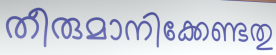
തീരുമാനിക്കേണ്ടതു